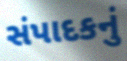
સંપાદકનું